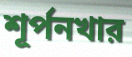
শূর্পনখার